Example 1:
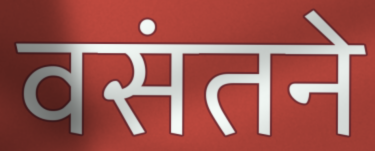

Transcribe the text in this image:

वसंतने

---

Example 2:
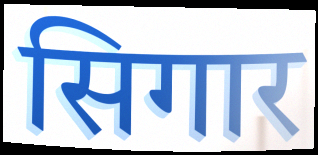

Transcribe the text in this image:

सिगार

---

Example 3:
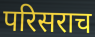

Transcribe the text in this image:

परिसराच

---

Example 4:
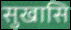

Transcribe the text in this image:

सुखासि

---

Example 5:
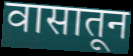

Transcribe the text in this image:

वासातून